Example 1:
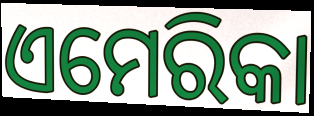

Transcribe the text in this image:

ଏମେରିକା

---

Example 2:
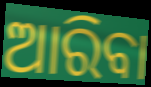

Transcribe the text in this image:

ଆରିବା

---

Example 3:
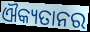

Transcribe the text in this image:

ଐକ୍ୟତାନର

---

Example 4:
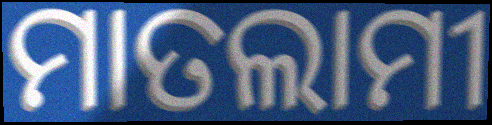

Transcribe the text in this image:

ମାତଲାମୀ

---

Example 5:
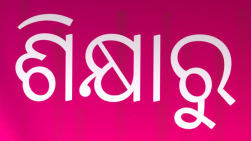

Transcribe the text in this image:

ଶିକ୍ଷାରୁ